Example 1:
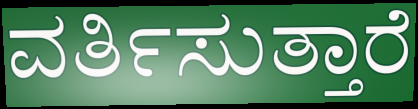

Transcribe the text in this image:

ವರ್ತಿಸುತ್ತಾರೆ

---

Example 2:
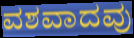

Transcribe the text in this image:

ವಶವಾದವು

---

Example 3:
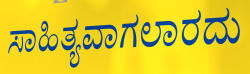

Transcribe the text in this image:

ಸಾಹಿತ್ಯವಾಗಲಾರದು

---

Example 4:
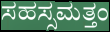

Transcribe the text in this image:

ಸಹಸ್ಸಮತ್ತಂ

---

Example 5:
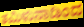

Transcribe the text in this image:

ತಮಿಳುನಾಡಿಂದ